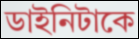
ডাইনিটাকে